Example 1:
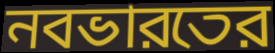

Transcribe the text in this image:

নবভারতের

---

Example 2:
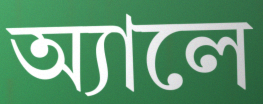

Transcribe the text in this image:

অ্যালে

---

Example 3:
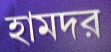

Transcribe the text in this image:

হামদর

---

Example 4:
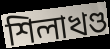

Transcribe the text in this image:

শিলাখণ্ড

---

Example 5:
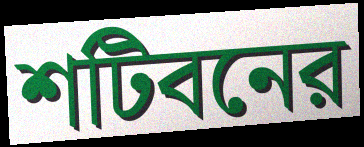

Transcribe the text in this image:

শটিবনের